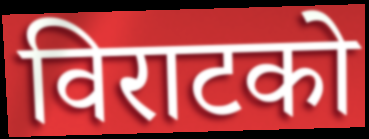
विराटको